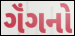
ગૅંગનો